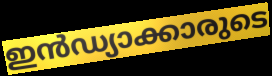
ഇൻഡ്യാക്കാരുടെ